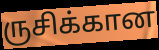
ருசிக்கான